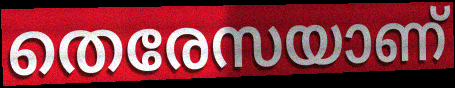
തെരേസയാണ്